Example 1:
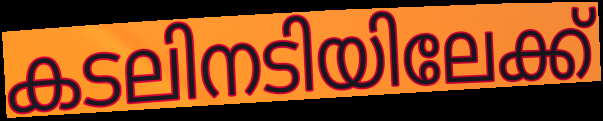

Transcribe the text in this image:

കടലിനടിയിലേക്ക്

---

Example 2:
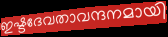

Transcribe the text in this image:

ഇഷ്ടദേവതാവന്ദനമായി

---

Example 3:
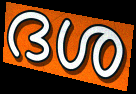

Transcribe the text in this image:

ദശ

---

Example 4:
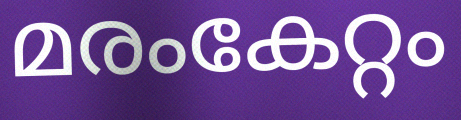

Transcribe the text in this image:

മരംകേറ്റം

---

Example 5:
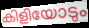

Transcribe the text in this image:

കിളിയോടും